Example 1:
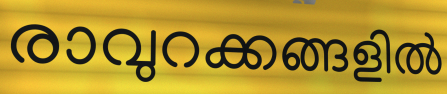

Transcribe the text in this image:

രാവുറക്കങ്ങളിൽ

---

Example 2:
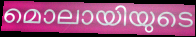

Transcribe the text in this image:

മൊലായിയുടെ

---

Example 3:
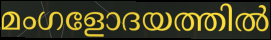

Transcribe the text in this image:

മംഗളോദയത്തിൽ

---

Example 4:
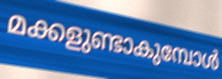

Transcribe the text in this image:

മക്കളുണ്ടാകുമ്പോൾ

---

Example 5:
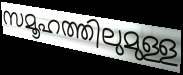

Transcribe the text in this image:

സമൂഹത്തിലുമുള്ള